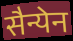
सैन्येन